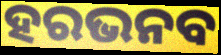
ହରଭନବ